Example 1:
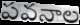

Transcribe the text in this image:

పవనాల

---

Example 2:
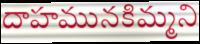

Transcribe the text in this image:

దాహమునకిమ్మని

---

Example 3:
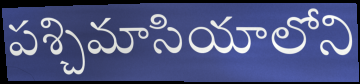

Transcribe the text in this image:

పశ్చిమాసియాలోని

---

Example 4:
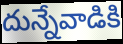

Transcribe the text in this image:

దున్నేవాడికి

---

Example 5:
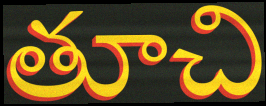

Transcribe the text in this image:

తూచి